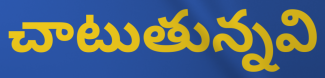
చాటుతున్నవి